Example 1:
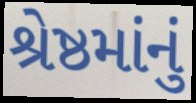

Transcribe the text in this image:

શ્રેષ્ઠમાંનું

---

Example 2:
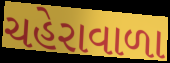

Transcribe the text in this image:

ચહેરાવાળા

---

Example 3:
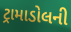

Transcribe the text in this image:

ટ્રામાડોલની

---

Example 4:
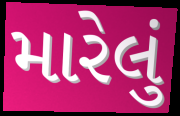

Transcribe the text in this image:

મારેલું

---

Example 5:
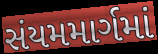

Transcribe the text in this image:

સંયમમાર્ગમાં